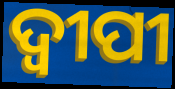
ଦ୍ୱୀପୀ